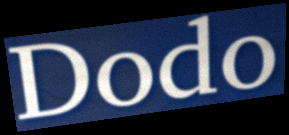
Dodo